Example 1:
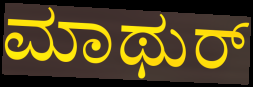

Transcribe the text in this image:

ಮಾಥುರ್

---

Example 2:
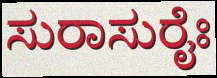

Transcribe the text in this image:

ಸುರಾಸುರೈಃ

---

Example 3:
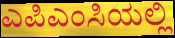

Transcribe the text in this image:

ಎಪಿಎಂಸಿಯಲ್ಲಿ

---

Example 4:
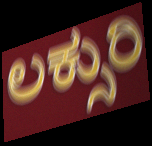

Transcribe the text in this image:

ಲಕ್ಸುರಿ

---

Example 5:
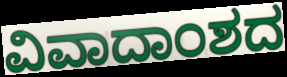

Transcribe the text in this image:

ವಿವಾದಾಂಶದ